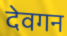
देवगन